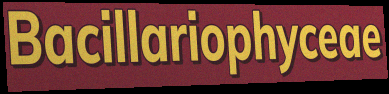
Bacillariophyceae